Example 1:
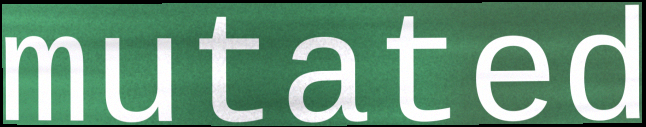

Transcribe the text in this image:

mutated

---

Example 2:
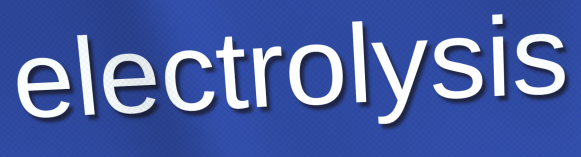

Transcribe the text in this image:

electrolysis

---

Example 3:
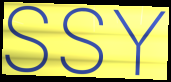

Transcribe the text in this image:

SSY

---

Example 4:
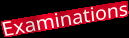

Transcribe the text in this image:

Examinations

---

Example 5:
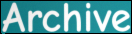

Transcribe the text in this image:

Archive